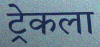
ट्रेकला